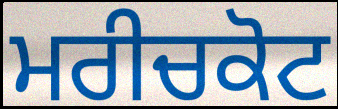
ਮਰੀਚਕੋਟ